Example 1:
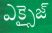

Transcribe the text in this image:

ఎక్సైజ్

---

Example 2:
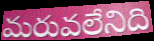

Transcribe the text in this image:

మరువలేనిది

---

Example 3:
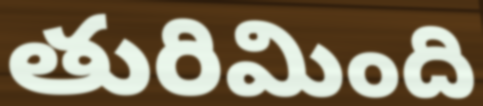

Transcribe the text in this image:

తురిమింది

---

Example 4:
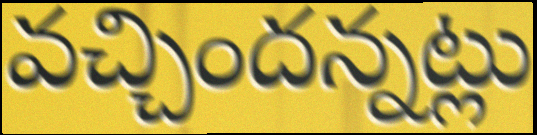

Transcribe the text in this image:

వచ్చిందన్నట్లు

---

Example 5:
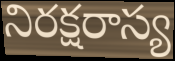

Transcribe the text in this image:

నిరక్షరాస్య